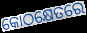
କୋଠକ୍ଷେତରେ